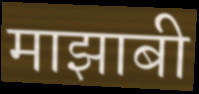
माझाबी